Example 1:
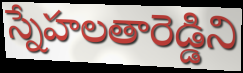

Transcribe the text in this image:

స్నేహలతారెడ్డిని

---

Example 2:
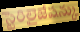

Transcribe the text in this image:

స్టెరిలైజేషన్కు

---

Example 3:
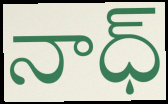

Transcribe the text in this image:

నాధ్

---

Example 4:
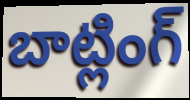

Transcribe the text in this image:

బాట్లింగ్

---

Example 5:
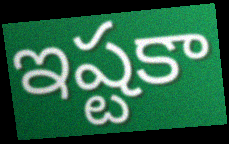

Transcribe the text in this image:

ఇష్టకా